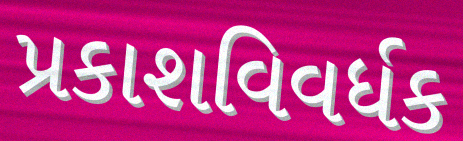
પ્રકાશવિવર્ધક